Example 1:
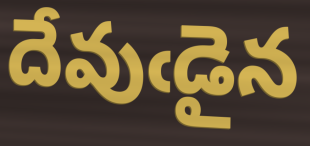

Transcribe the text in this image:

దేవుఁడైన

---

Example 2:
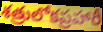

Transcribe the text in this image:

శత్రులోకప్రహారీ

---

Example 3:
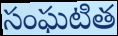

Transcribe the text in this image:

సంఘటిత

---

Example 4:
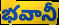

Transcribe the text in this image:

భవానీ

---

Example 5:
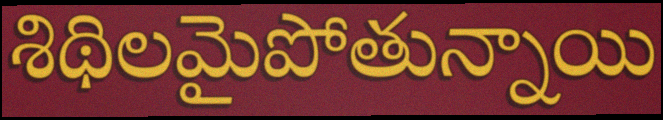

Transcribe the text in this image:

శిథిలమైపోతున్నాయి